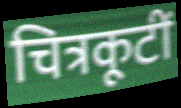
चित्रकूटीं